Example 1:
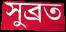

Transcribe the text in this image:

সুব্রত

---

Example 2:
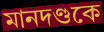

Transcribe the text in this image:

মানদণ্ডকে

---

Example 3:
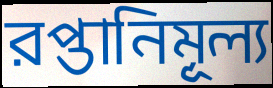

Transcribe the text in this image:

রপ্তানিমূল্য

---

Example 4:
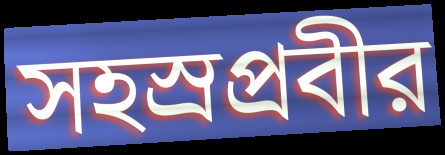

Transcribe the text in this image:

সহস্রপ্রবীর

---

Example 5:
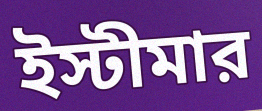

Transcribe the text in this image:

ইস্টীমার